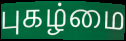
புகழ்மை